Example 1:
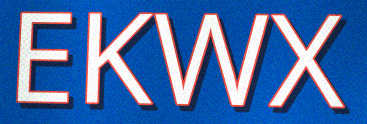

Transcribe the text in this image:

EKWX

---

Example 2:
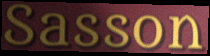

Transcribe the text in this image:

Sasson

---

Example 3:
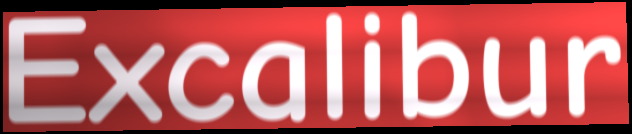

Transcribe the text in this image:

Excalibur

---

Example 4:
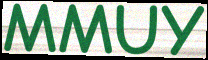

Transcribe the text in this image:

MMUY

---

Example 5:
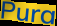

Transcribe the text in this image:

Pura